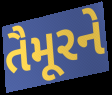
તૈમૂરને